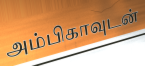
அம்பிகாவுடன்